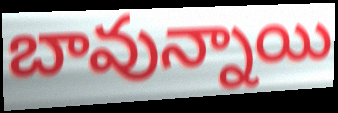
బావున్నాయి